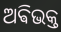
ଅଵିଭକ୍ତ